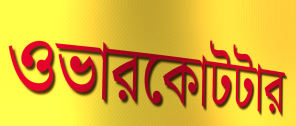
ওভারকোটটার